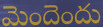
మెందెందు